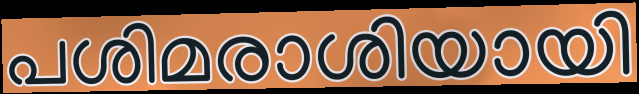
പശിമരാശിയായി